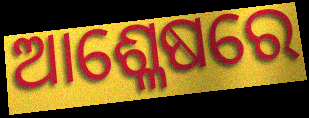
ଆଶ୍ଳେଷରେ